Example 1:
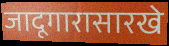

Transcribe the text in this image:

जादूगारासारखे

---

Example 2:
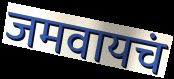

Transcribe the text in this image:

जमवायचं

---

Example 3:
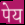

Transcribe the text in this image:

पेय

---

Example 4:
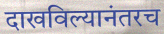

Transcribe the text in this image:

दाखविल्यानंतरच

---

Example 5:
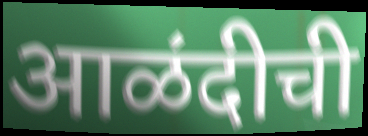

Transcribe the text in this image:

आळंदीची